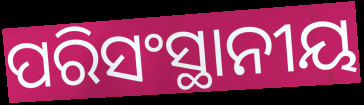
ପରିସଂସ୍ଥାନୀୟ